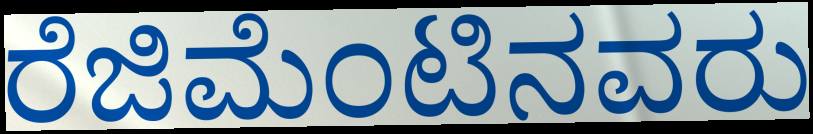
ರೆಜಿಮೆಂಟಿನವರು